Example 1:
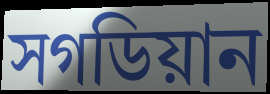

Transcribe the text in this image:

সগডিয়ান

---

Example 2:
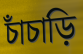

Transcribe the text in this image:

চাঁচাড়ি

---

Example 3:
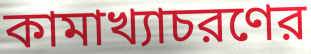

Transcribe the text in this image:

কামাখ্যাচরণের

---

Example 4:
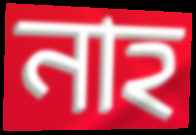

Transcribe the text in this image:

নাহ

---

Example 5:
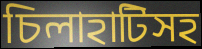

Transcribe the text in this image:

চিলাহাটিসহ